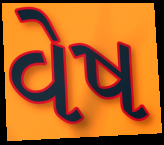
વેષ